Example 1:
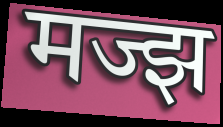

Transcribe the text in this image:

मज्झ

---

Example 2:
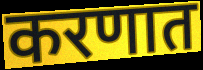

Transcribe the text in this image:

करणात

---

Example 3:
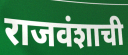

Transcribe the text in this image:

राजवंशाची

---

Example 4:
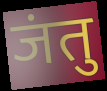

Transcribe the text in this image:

जंतु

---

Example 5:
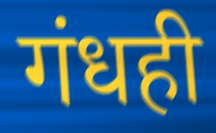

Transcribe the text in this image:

गंधही